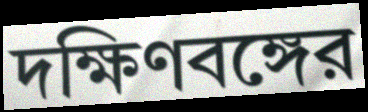
দক্ষিণবঙ্গের